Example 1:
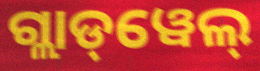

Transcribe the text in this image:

ଗ୍ଲାଡ୍‌ୱେଲ୍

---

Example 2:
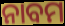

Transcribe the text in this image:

ନାବମ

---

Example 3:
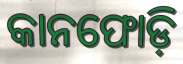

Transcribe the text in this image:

କାନଫୋଡ଼ି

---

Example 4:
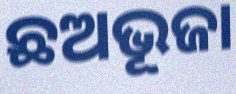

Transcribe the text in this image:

ଛଅଭୂଜା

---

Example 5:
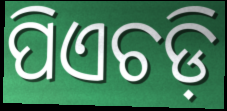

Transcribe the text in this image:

ପିଏଚଡ଼ି